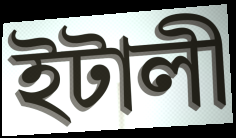
ইটালী